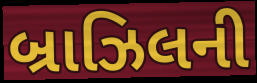
બ્રાઝિલની